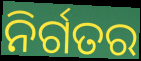
ନିର୍ଗତର